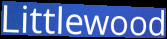
Littlewood